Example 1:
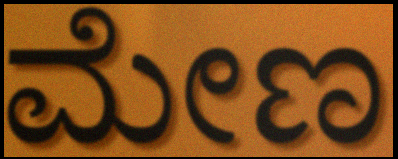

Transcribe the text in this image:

ಮೇಣ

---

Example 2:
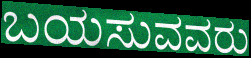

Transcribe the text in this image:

ಬಯಸುವವರು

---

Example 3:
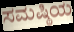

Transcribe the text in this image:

ಸಮಷ್ಠಿಯ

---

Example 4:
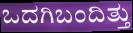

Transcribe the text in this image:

ಒದಗಿಬಂದಿತ್ತು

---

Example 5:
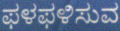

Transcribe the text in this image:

ಫಳಫಳಿಸುವ